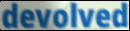
devolved